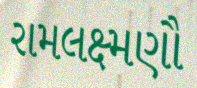
રામલક્ષ્મણૌ